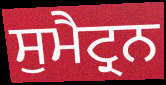
ਸੁਮੈਟ੍ਰਨ